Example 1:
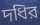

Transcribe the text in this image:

দধির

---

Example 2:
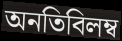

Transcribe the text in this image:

অনতিবিলম্ব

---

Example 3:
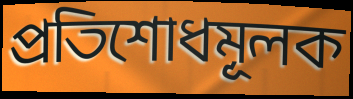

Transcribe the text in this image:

প্রতিশোধমূলক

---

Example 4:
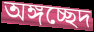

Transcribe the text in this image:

অঙ্গচ্ছেদ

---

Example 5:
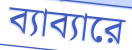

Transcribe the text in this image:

ব্যাব্যারে